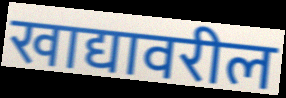
खाद्यावरील